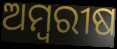
ଅମ୍ବରୀଷ